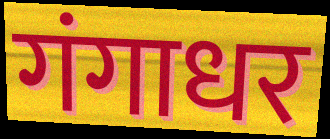
गंगाधर